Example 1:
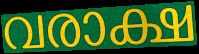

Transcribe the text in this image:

വരാക്ഷ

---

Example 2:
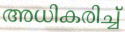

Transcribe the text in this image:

അധികരിച്ച്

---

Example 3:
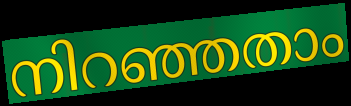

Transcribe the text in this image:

നിറഞ്ഞതാം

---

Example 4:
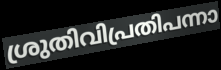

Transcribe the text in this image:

ശ്രുതിവിപ്രതിപന്നാ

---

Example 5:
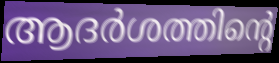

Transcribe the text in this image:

ആദർശത്തിന്റെ